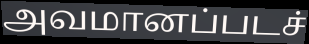
அவமானப்படச்